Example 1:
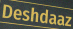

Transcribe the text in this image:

Deshdaaz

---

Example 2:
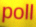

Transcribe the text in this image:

poll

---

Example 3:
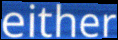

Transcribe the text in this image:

either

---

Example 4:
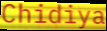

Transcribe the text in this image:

Chidiya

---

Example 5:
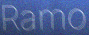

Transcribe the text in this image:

Ramo